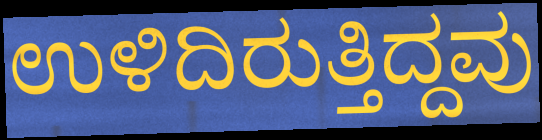
ಉಳಿದಿರುತ್ತಿದ್ದವು